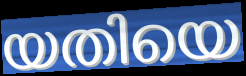
യതിയെ